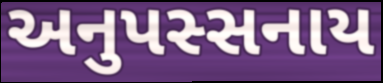
અનુપસ્સનાય